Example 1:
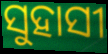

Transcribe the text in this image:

ସୁହାସୀ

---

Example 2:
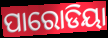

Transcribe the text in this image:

ପାରୋଡିୟା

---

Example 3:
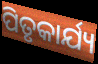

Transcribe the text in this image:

ପିତୃକାର୍ଯ୍ୟ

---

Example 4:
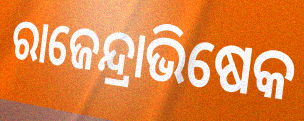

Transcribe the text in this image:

ରାଜେନ୍ଦ୍ରାଭିଷେକ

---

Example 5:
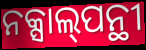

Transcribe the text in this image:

ନକ୍ସାଲ୍‌ପନ୍ଥୀ